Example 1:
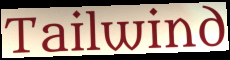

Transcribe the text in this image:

Tailwind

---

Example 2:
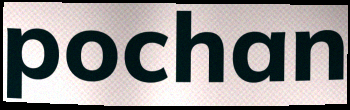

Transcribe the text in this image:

pochan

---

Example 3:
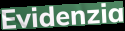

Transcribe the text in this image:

Evidenzia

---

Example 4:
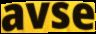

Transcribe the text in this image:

avse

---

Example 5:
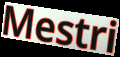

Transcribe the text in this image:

Mestri